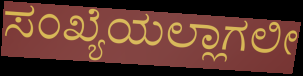
ಸಂಖ್ಯೆಯಲ್ಲಾಗಲೀ